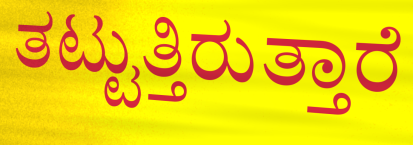
ತಟ್ಟುತ್ತಿರುತ್ತಾರೆ